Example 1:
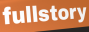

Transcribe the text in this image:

fullstory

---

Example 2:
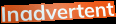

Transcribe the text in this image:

Inadvertent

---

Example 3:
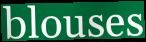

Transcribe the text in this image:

blouses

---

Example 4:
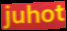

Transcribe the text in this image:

juhot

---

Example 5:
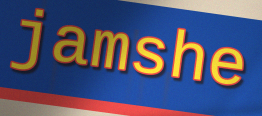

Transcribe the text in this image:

jamshe